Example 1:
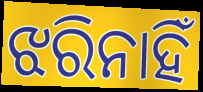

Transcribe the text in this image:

ଝରିନାହିଁ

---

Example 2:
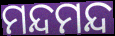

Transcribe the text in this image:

ମନ୍ଦମନ୍ଦ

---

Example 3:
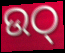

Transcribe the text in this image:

ଉଠ୍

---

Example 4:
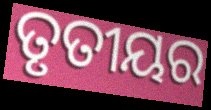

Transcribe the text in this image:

ତୃତୀୟର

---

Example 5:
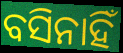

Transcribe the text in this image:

ବସିନାହିଁ